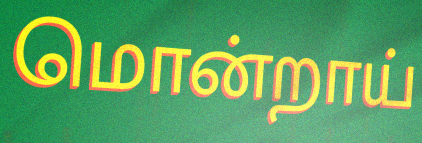
மொன்றாய்